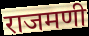
राजमणी